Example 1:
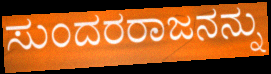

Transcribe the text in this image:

ಸುಂದರರಾಜನನ್ನು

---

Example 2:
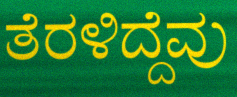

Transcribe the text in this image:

ತೆರಳಿದ್ದೆವು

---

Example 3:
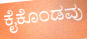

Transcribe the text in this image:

ಕೈಕೊಂಡವು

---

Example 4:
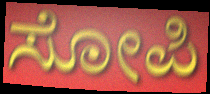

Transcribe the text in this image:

ಸೋಪಿ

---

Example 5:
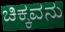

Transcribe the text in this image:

ಚಿಕ್ಕವನು